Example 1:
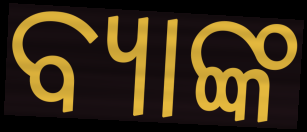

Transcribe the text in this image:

ବ୍ୟାଙ୍କ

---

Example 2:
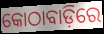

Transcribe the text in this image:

କୋଠାବାଡ଼ିରେ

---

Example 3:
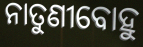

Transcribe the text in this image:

ନାତୁଣୀବୋହୁ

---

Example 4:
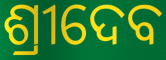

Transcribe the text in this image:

ଶ୍ରୀଦେବ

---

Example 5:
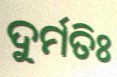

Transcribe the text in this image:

ଦୁର୍ମତିଃ